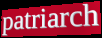
patriarch